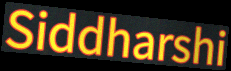
Siddharshi